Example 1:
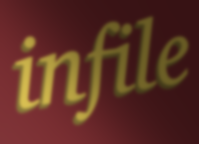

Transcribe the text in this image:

infile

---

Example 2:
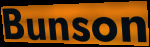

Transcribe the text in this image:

Bunson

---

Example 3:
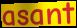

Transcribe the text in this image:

asant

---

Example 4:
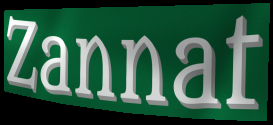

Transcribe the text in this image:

Zannat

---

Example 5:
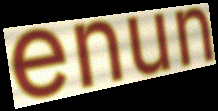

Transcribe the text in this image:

enun